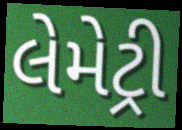
લેમેટ્રી